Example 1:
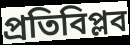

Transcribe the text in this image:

প্রতিবিপ্লব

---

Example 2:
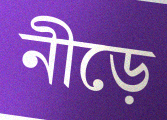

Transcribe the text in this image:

নীড়ে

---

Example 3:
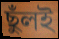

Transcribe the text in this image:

ছুঁলই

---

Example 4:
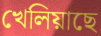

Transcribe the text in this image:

খেলিয়াছে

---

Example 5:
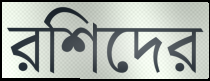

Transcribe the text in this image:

রশিদের